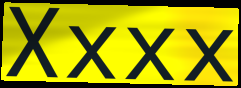
Xxxx